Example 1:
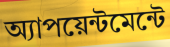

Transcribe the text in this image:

অ্যাপয়েন্টমেন্টে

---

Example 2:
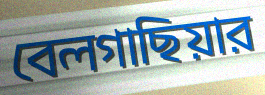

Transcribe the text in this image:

বেলগাছিয়ার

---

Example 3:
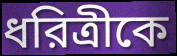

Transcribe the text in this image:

ধরিত্রীকে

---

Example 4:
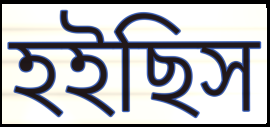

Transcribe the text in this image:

হইছিস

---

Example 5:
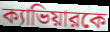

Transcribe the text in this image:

ক্যাভিয়ারকে